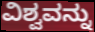
ವಿಶ್ವವನ್ನು